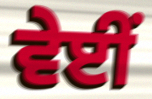
ਵੇਈਂ